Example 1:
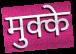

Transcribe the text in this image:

मुक्‍के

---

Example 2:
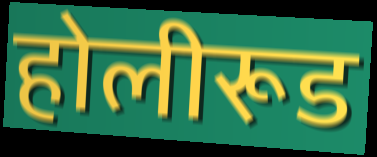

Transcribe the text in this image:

होलीरूड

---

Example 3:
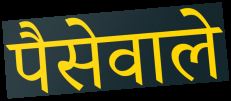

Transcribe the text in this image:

पैसेवाले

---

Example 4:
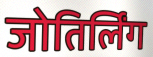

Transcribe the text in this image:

जोतिर्लिंग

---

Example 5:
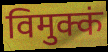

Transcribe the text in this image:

विमुक्कं